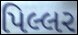
પિલ્લર